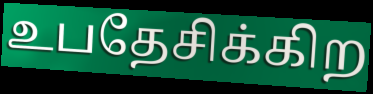
உபதேசிக்கிற